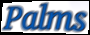
Palms